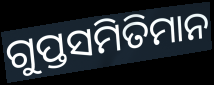
ଗୁପ୍ତସମିତିମାନ